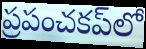
ప్రపంచకప్‌లో